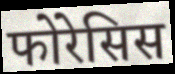
फोरेसिस